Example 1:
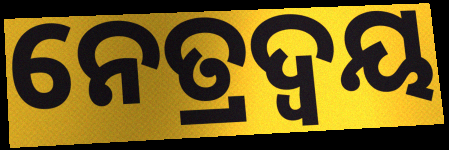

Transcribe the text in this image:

ନେତ୍ରଦ୍ୱୟ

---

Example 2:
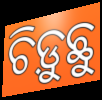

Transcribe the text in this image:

ଚିଡ଼ୁଛୁ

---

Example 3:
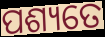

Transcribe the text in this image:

ପଶ୍ୟତେ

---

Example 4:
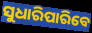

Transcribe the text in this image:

ସୁଧାରିପାରିବେ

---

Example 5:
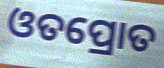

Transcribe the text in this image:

ଓତପ୍ରୋତ